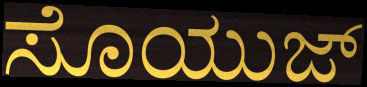
ಸೊಯುಜ್